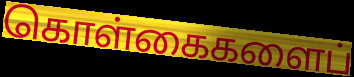
கொள்கைகளைப்